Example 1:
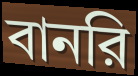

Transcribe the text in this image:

বানরি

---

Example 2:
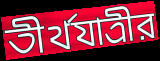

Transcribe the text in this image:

তীর্থযাত্রীর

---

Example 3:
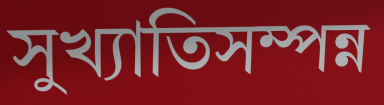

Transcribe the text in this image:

সুখ্যাতিসম্পন্ন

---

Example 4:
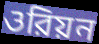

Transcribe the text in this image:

ওরিয়ন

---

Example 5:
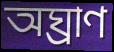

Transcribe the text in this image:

অঘ্রাণ